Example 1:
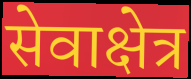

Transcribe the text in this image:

सेवाक्षेत्र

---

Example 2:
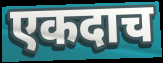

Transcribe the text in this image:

एकदाच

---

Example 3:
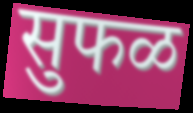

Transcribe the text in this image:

सुफळ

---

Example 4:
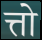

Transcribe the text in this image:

त्तो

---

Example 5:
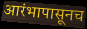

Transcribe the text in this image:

आरंभापासूनच